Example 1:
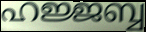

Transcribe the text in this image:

ഹജ്ജബ്ബ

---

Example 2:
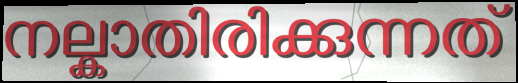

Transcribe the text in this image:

നല്കാതിരിക്കുന്നത്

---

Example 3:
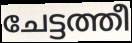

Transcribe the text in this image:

ചേട്ടത്തീ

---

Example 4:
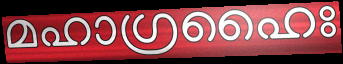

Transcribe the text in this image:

മഹാഗ്രഹൈഃ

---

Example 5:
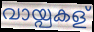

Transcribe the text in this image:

വായ്പകള്